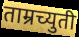
ताम्रच्युती